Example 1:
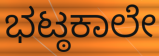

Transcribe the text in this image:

ಭಟ್ಠಕಾಲೇ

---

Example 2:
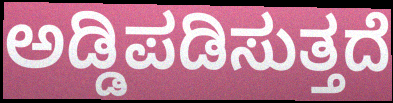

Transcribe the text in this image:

ಅಡ್ಡಿಪಡಿಸುತ್ತದೆ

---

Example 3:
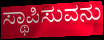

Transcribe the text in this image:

ಸ್ಥಾಪಿಸುವನು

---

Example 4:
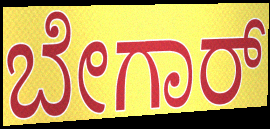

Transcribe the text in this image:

ಬೇಗಾರ್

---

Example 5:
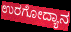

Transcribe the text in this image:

ಉರಗೋದ್ಯಾನ